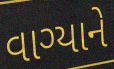
વાગ્યાને